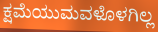
ಕ್ಷಮೆಯುಮವಳೊಳಗಿಲ್ಲ